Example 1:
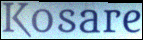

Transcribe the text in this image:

Kosare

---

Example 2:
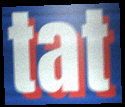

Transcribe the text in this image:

tat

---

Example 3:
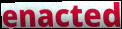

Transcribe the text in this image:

enacted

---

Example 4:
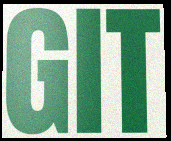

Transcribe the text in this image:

GIT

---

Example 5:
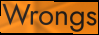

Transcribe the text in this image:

Wrongs